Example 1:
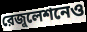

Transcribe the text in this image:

রেজুলেশনেও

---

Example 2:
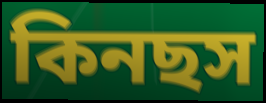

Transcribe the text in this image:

কিনছস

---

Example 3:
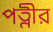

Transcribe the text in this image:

পত্নীর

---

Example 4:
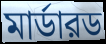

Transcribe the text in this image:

মার্ডারড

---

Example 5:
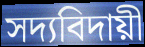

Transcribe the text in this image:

সদ্যবিদায়ী